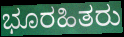
ಭೂರಹಿತರು